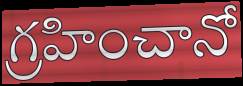
గ్రహించానో